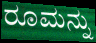
ರೂಮನ್ನು